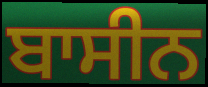
ਬਾਸੀਨ